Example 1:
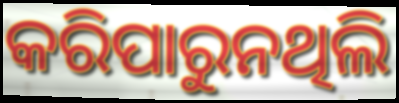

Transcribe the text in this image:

କରିପାରୁନଥିଲି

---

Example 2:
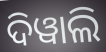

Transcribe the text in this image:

ଦିୱାଲି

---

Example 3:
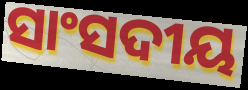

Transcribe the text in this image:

ସାଂସଦୀୟ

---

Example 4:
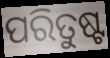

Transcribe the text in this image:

ପରିତୁଷ୍ଟ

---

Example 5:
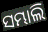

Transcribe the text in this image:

ସମ୍ଭାଲି